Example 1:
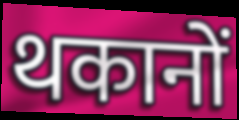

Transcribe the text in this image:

थकानों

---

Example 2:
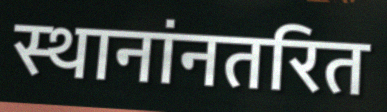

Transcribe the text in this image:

स्थानांनतरित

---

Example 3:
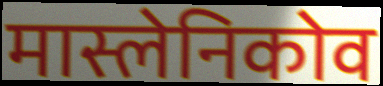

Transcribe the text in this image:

मास्लेनिकोव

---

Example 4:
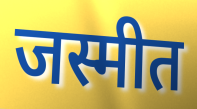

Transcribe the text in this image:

जस्मीत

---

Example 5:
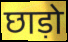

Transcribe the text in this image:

छाड़ो